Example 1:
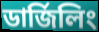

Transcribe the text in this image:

ডার্জিলিং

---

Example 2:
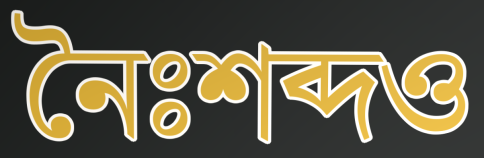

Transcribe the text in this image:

নৈঃশব্দও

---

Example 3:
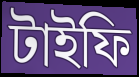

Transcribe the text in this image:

টাইফি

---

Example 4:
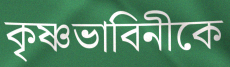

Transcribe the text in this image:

কৃষ্ণভাবিনীকে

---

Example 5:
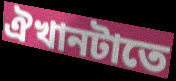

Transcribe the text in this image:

ঐখানটাতে